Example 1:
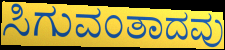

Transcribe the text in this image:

ಸಿಗುವಂತಾದವು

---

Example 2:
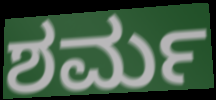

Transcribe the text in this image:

ಶರ್ಮ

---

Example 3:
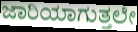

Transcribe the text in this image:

ಜಾರಿಯಾಗುತ್ತಲೇ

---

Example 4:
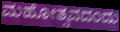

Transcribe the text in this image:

ಮಹೋತ್ಸವದಂದು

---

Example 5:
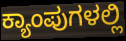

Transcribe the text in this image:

ಕ್ಯಾಂಪುಗಳಲ್ಲಿ